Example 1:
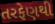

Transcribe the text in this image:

તરફેણથી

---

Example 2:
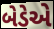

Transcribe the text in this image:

બેડેએ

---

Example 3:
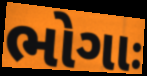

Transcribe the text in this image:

ભોગાઃ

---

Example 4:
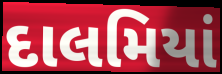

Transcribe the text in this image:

દાલમિયાં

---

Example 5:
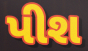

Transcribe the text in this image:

પીશ